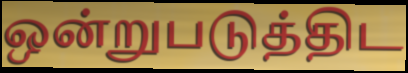
ஒன்றுபடுத்திட